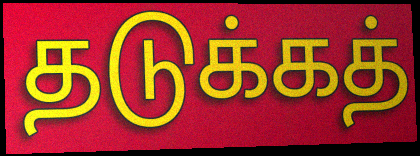
தடுக்கத்